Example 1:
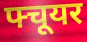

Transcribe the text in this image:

फ्चूयर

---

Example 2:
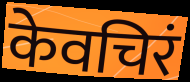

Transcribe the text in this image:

केवचिरं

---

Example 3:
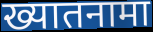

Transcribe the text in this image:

ख्यातनामा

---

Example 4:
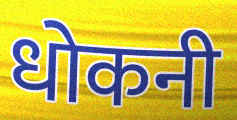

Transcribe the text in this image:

धोकनी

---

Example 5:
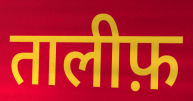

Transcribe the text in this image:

तालीफ़